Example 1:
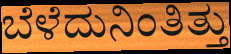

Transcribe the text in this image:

ಬೆಳೆದುನಿಂತಿತ್ತು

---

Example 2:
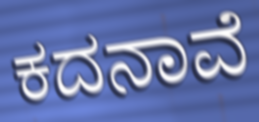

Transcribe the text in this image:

ಕದನಾವೆ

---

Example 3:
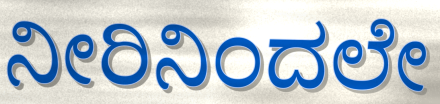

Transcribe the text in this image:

ನೀರಿನಿಂದಲೇ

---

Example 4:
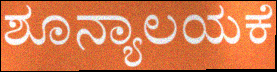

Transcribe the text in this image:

ಶೂನ್ಯಾಲಯಕೆ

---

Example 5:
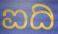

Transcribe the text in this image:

ಐದಿ